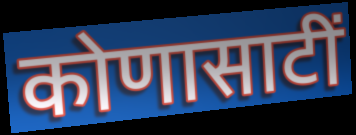
कोणासाटीं